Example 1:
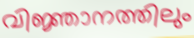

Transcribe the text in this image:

വിജ്ഞാനത്തിലും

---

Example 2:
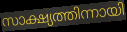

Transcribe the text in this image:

സാക്ഷ്യത്തിന്നായി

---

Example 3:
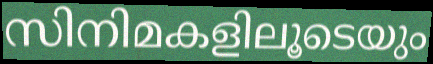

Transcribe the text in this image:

സിനിമകളിലൂടെയും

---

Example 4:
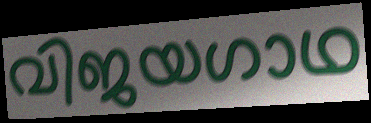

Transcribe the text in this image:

വിജയഗാഥ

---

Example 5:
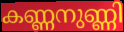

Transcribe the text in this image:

കണ്ണനുണ്ണി